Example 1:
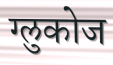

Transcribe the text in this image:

ग्लुकोज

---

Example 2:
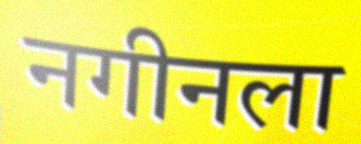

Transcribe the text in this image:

नगीनला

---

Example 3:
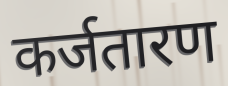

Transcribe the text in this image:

कर्जतारण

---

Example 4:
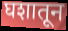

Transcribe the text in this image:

घशातून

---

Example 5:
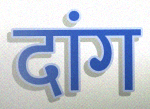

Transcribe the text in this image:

दांग